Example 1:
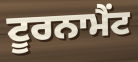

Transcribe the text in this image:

ਟੂਰਨਾਮੈਂਟ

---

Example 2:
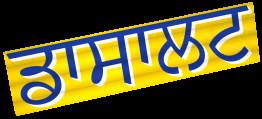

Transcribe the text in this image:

ਡਾਸਾਲਟ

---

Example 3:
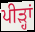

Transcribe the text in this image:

ਪੀੜ੍ਹਾਂ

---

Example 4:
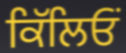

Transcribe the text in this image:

ਕਿੱਲਿਓਂ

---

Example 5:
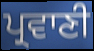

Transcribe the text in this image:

ਪ੍ਰਵਾਣੀ